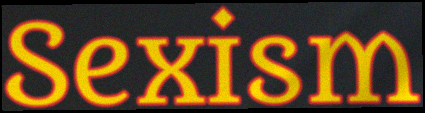
Sexism